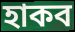
হাকব